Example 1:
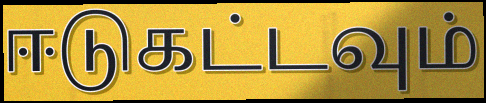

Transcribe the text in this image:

ஈடுகட்டவும்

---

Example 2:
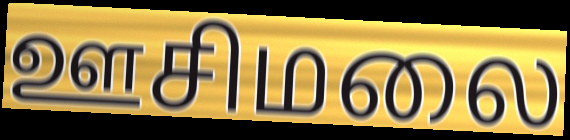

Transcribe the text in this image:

ஊசிமலை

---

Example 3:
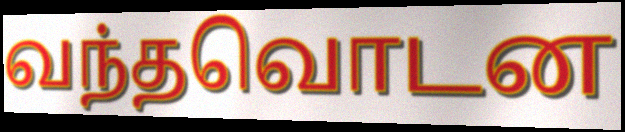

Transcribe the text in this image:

வந்தவொடன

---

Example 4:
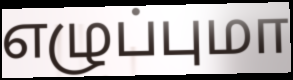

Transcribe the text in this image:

எழுப்புமா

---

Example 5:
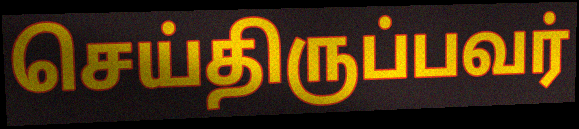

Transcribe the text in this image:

செய்திருப்பவர்